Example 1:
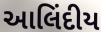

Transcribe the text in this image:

આલિંદીય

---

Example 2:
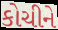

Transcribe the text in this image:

કોચીને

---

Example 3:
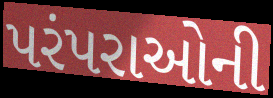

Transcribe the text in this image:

પરંપરાઓની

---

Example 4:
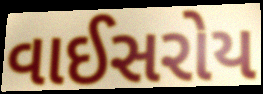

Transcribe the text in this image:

વાઈસરોય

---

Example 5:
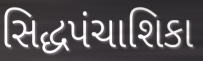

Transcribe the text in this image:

સિદ્ધપંચાશિકા